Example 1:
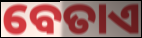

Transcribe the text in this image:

ବେତାଏ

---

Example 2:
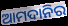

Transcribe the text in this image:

ଆମଦାନିର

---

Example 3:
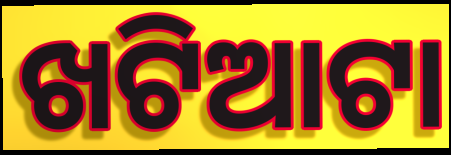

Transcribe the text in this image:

ଖଟିଆଟା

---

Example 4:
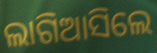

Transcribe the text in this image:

ଲାଗିଆସିଲେ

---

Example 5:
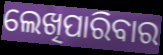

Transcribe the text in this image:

ଲେଖିପାରିବାର